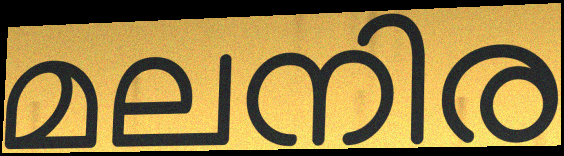
മലനിര